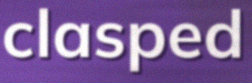
clasped